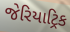
જેરિયાટ્રિક